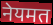
नेयमत